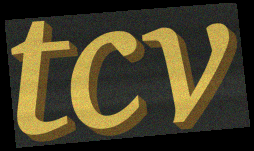
tcv